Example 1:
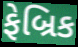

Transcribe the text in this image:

ફેબ્રિક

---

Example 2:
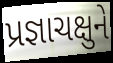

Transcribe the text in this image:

પ્રજ્ઞાચક્ષુને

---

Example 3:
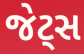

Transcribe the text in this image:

જેટ્સ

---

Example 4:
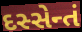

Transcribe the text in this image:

દસ્સેન્તં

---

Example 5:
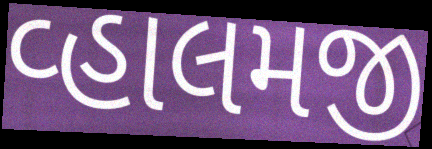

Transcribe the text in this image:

વ્હાલમજી